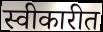
स्वीकारीत